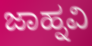
ಜಾಹ್ನವಿ